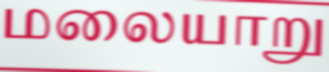
மலையாறு